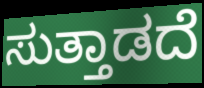
ಸುತ್ತಾಡದೆ